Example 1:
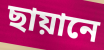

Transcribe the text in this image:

ছায়ানে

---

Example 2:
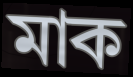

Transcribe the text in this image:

মাক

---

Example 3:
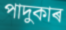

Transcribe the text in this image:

পাদুকাৰ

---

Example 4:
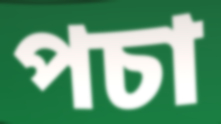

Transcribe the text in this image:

পচা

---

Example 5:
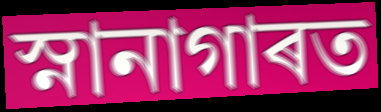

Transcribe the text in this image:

স্নানাগাৰত